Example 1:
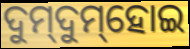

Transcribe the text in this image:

ଦୁମ୍‌ଦୁମ୍‌ହୋଇ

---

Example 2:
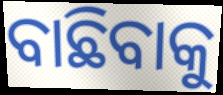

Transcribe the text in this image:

ବାଛିବାକୁ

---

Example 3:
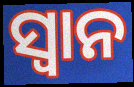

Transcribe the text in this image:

ସ୍ୱାନ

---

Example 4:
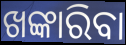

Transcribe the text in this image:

ଖଙ୍କାରିବା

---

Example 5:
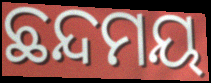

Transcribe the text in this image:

ଛନ୍ଦମୟ